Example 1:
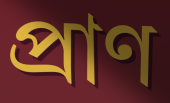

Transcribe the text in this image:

প্রাণ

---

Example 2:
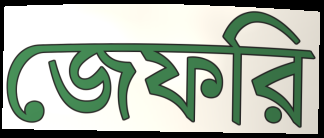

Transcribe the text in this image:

জেফরি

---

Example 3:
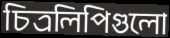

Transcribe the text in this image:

চিত্রলিপিগুলো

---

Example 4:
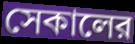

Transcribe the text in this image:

সেকালের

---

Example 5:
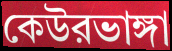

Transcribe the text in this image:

কেউরভাঙ্গা